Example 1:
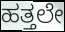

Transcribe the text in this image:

ಹತ್ತಲೇ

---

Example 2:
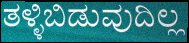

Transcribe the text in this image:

ತಳ್ಳಿಬಿಡುವುದಿಲ್ಲ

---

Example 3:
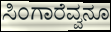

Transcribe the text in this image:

ಸಿಂಗಾರೆವ್ವನೂ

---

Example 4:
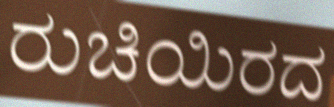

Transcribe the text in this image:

ರುಚಿಯಿರದ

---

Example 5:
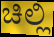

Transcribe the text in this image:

ಚಿಲ್ಲಿ